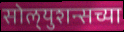
सोल्युशन्सच्या